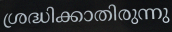
ശ്രദ്ധിക്കാതിരുന്നു